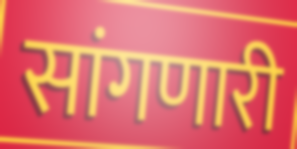
सांगणारी